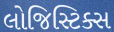
લોજિસ્ટિક્સ